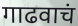
गाढवाचं